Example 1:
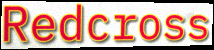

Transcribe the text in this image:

Redcross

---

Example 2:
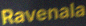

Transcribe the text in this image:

Ravenala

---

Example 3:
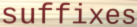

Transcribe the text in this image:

suffixes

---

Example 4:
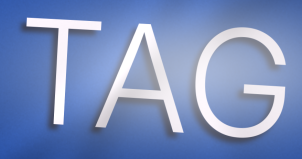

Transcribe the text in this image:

TAG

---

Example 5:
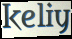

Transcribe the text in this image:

keliy